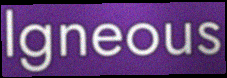
Igneous